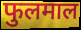
फुलमाल